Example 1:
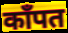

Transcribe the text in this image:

काँपत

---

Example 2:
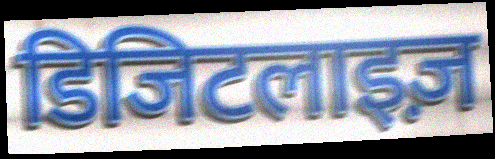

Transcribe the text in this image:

डिजिटलाइज़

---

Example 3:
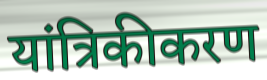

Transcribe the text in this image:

यांत्रिकीकरण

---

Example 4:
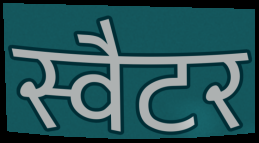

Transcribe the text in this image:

स्वैटर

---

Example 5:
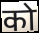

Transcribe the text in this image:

को